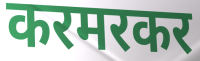
करमरकर